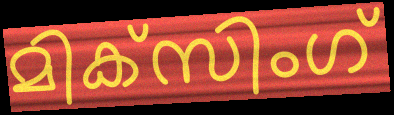
മിക്‌സിംഗ്